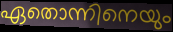
ഏതൊന്നിനെയും